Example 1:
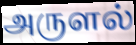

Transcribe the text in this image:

அருளல்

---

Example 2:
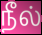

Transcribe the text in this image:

நீல்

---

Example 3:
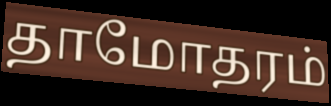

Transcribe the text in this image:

தாமோதரம்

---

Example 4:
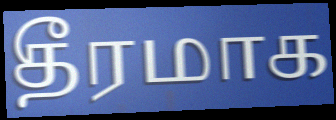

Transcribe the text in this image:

தீரமாக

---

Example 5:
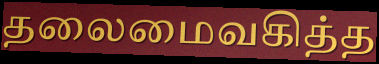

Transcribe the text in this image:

தலைமைவகித்த